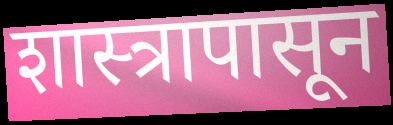
शास्त्रापासून